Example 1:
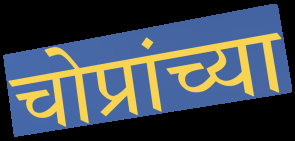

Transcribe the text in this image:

चोप्रांच्या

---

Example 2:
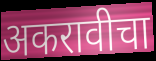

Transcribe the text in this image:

अकरावीचा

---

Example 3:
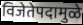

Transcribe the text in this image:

विजेतेपदामुळे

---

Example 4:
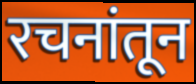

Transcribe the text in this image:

रचनांतून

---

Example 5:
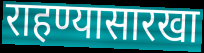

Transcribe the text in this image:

राहण्यासारखा